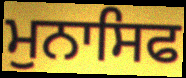
ਮੁਨਾਸਿਫ